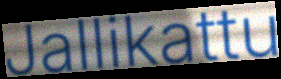
Jallikattu